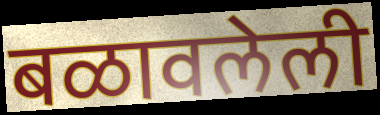
बळावलेली